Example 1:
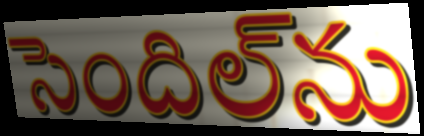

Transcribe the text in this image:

సెందిల్‌ను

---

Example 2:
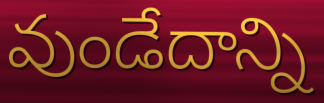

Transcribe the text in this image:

వుండేదాన్ని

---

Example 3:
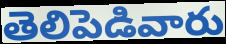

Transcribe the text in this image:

తెలిపెడివారు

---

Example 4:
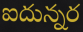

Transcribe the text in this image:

ఐదున్నర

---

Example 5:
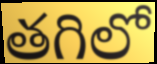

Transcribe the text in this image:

తగిలో